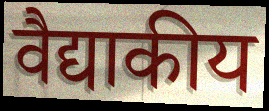
वैद्याकीय